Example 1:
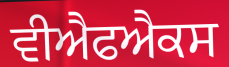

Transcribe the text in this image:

ਵੀਐਫਐਕਸ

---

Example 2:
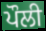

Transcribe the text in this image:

ਪੌਲੀ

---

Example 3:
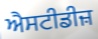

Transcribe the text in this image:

ਐਸਟੀਡੀਜ਼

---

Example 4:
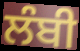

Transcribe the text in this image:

ਲੰਬੀ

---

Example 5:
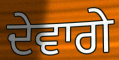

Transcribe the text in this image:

ਦੇਵਾਗੇ